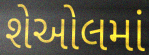
શેઓલમાં